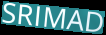
SRIMAD